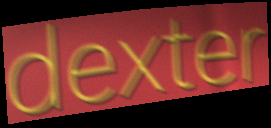
dexter